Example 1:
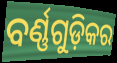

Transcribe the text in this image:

ବର୍ଣ୍ଣଗୁଡ଼ିକର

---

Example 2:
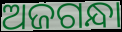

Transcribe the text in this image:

ଅଜଗନ୍ଧା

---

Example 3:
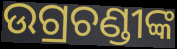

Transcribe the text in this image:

ଉଗ୍ରଚଣ୍ଡୀଙ୍କ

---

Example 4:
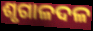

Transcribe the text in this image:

ଶୃଗାଳଦଳ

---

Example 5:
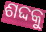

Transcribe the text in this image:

ଶଦ୍ଦକୁ